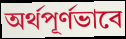
অর্থপূর্ণভাবে